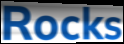
Rocks